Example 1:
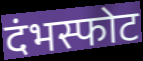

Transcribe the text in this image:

दंभस्फोट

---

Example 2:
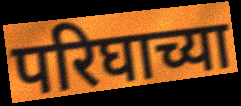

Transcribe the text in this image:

परिघाच्या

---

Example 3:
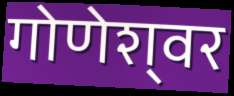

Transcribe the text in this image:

गोणेश्वर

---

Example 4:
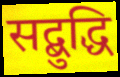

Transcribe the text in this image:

सद्बुद्धि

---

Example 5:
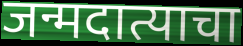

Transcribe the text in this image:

जन्मदात्याचा